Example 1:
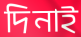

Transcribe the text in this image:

দিনাই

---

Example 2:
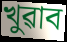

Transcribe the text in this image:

খুৱাব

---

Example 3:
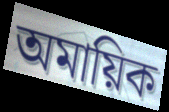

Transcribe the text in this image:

অমায়িক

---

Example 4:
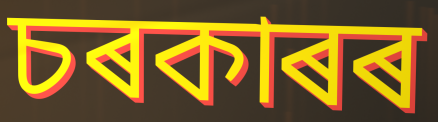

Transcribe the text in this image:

চৰকাৰৰ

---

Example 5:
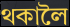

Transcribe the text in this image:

থকালৈ